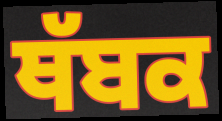
ਥੱਬਕ